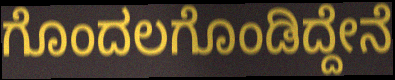
ಗೊಂದಲಗೊಂಡಿದ್ದೇನೆ